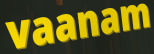
vaanam